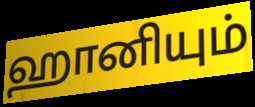
ஹானியும்